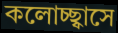
কলোচ্ছ্বাসে